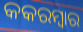
କକରମ୍ବାର